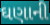
ઘણાની